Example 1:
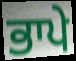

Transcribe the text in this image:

ਭਾਪੇ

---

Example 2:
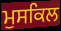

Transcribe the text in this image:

ਮੁਸਕਿਲ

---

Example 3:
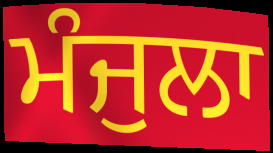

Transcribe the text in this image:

ਮੰਜੁਲਾ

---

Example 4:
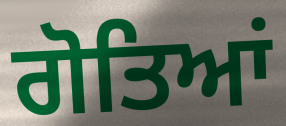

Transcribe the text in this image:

ਗੋਤਿਆਂ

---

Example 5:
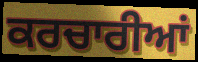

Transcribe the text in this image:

ਕਰਚਾਰੀਆਂ